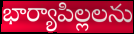
భార్యాపిల్లలను